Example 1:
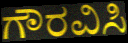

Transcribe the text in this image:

ಗೌರವಿಸಿ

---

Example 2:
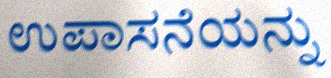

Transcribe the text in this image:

ಉಪಾಸನೆಯನ್ನು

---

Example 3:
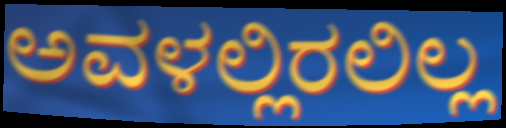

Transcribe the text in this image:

ಅವಳಲ್ಲಿರಲಿಲ್ಲ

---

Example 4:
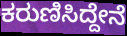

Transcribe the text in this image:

ಕರುಣಿಸಿದ್ದೇನೆ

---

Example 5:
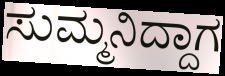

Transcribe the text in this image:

ಸುಮ್ಮನಿದ್ದಾಗ